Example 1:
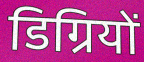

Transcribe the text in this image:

डिग्रियों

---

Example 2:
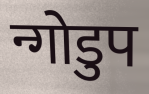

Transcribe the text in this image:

न्गोडुप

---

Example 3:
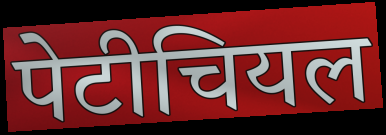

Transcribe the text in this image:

पेटीचियल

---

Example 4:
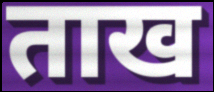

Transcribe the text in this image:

ताख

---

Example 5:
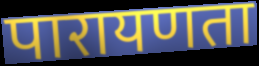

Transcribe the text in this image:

पारायणता